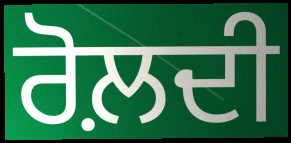
ਰੋਲ਼ਦੀ